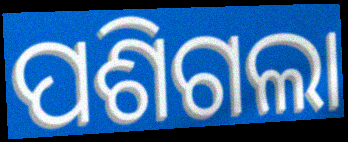
ପଶିଗଲା